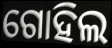
ଗୋହିଲ